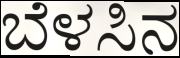
ಬೆಳಸಿನ